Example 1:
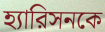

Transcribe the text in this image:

হ্যারিসনকে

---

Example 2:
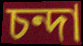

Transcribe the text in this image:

চন্দা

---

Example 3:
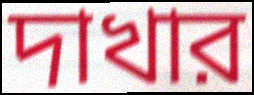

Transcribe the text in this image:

দাখার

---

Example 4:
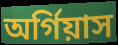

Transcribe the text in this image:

অর্গিয়াস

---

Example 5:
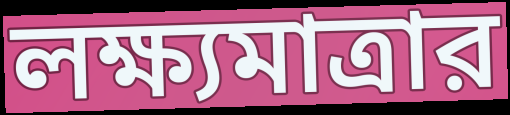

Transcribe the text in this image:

লক্ষ্যমাত্রার